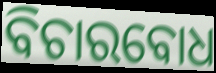
ବିଚାରବୋଧ